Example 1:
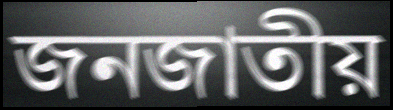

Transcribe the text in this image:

জনজাতীয়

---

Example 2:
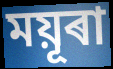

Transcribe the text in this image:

ময়ূৰা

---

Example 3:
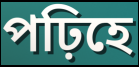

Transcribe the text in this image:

পঢ়িহে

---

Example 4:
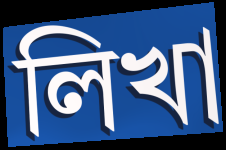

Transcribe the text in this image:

লিখা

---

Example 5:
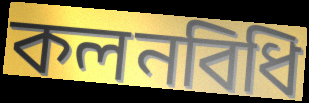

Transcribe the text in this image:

কলনবিধি